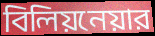
বিলিয়নেয়ার